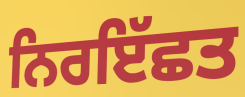
ਨਿਰਇੱਛਤ